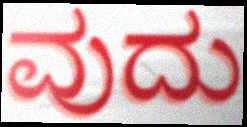
ವುದು